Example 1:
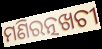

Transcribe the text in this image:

ମଣିରତ୍ନଖଚୀ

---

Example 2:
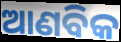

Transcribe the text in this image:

ଆଣବିକ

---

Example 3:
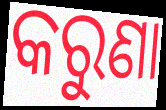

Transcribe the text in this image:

କରୁଣା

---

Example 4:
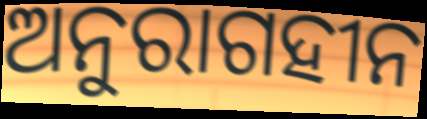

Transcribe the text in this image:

ଅନୁରାଗହୀନ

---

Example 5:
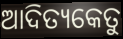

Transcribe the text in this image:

ଆଦିତ୍ୟକେତୁ